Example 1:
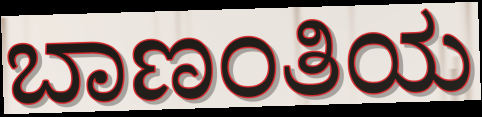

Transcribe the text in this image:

ಬಾಣಂತಿಯ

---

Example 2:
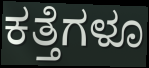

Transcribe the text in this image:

ಕತ್ತೆಗಳೂ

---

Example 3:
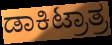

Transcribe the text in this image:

ಡಾಕಿಟ್ರಾತ್ರ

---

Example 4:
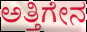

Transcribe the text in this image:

ಅತ್ತಿಗೇನ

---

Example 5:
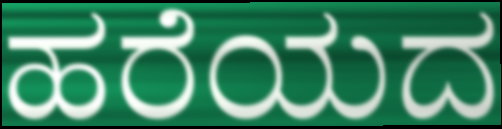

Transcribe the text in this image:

ಹರೆಯದ